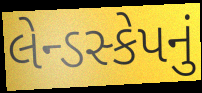
લેન્ડસ્કેપનું